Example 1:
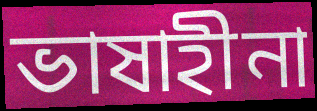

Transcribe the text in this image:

ভাষাহীনা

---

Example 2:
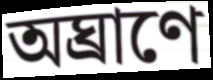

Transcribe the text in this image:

অঘ্রাণে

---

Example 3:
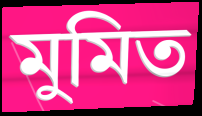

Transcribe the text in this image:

মুমিত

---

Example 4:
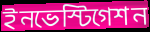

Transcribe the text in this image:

ইনভেস্টিগেশন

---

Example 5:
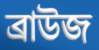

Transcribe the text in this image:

ব্রাউজ